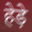
हेड़े